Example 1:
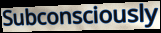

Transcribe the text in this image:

Subconsciously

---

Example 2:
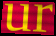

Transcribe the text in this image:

ur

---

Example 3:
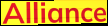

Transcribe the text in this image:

Alliance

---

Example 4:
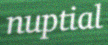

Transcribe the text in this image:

nuptial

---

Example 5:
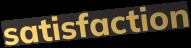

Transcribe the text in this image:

satisfaction